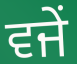
ਵਜੇਂ